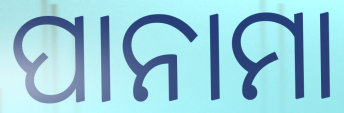
ପାନାମା